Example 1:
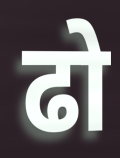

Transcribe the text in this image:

ढो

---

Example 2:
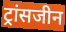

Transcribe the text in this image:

ट्रांसजीन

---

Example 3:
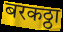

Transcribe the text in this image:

बरकठ्ठा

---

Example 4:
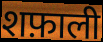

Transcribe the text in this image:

शफ़ाली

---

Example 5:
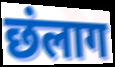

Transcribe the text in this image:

छंलाग